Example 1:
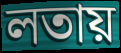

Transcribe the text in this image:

লতায়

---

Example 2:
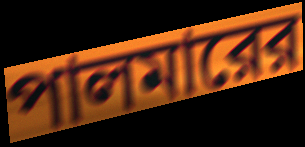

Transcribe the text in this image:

পালমারের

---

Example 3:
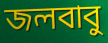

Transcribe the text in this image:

জলবাবু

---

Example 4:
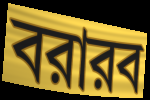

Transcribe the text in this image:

বরারব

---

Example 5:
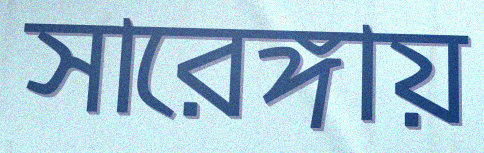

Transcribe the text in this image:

সারেঙ্গায়